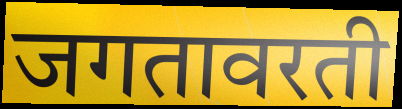
जगतावरती